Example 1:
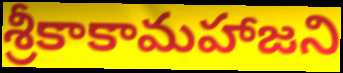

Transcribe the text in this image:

శ్రీకాకామహాజని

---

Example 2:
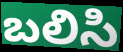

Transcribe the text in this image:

బలిసి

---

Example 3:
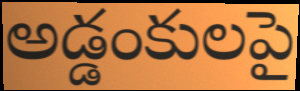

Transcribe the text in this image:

అడ్డంకులపై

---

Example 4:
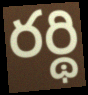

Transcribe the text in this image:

రర్థి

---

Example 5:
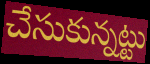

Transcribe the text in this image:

చేసుకున్నట్టు